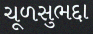
ચૂળસુભદ્દા